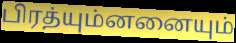
பிரத்யும்னனையும்